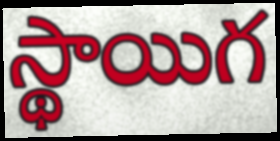
స్థాయిగ